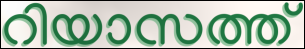
റിയാസത്ത്